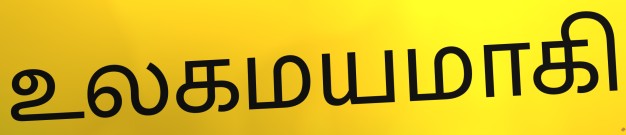
உலகமயமாகி